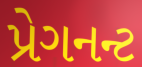
પ્રેગનન્ટ